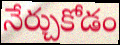
నేర్చుకోడం